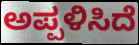
ಅಪ್ಪಳಿಸಿದೆ